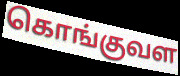
கொங்குவள